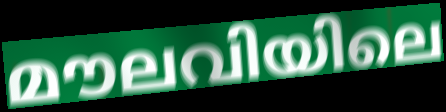
മൗലവിയിലെ